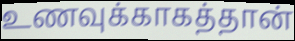
உணவுக்காகத்தான்